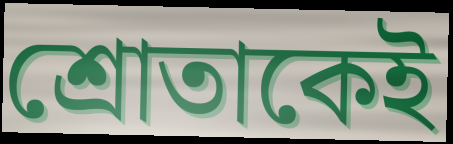
শ্রোতাকেই